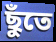
ছুঁতে